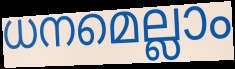
ധനമെല്ലാം